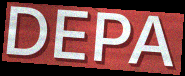
DEPA